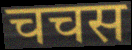
चचस